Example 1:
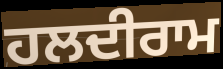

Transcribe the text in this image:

ਹਲਦੀਰਾਮ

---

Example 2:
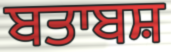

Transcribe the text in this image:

ਬਤਾਬਸ਼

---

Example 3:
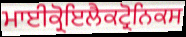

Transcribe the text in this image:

ਮਾਈਕ੍ਰੋਇਲੈਕਟ੍ਰੋਨਿਕਸ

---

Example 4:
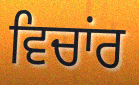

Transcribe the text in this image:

ਵਿਚਾਂਰ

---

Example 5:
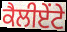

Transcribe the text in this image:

ਕੈਲੀਏਂਟੇ